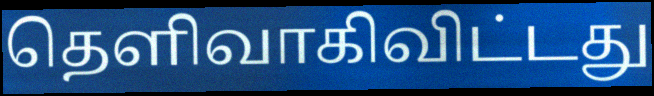
தெளிவாகிவிட்டது